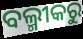
ବଲ୍ମୀକରୁ